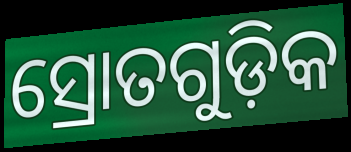
ସ୍ରୋତଗୁଡ଼ିକ